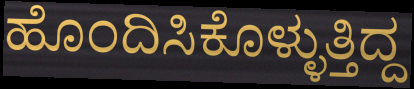
ಹೊಂದಿಸಿಕೊಳ್ಳುತ್ತಿದ್ದ